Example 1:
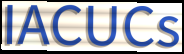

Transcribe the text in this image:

IACUCs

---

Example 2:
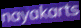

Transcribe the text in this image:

nayakarts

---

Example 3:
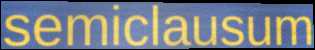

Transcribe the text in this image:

semiclausum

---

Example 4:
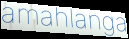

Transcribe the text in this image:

amahlanga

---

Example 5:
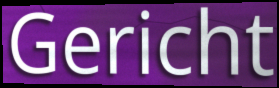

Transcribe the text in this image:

Gericht